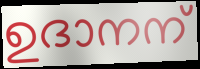
ഉദാനന്